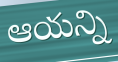
ఆయన్ని